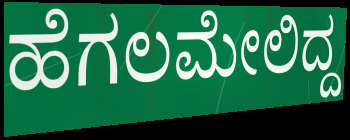
ಹೆಗಲಮೇಲಿದ್ದ